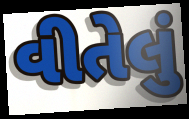
વીતેલું